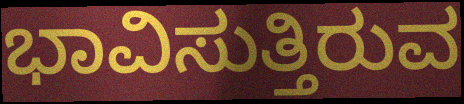
ಭಾವಿಸುತ್ತಿರುವ